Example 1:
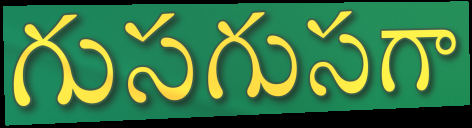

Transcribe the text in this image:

గుసగుసగా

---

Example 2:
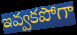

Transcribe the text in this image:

ఇవ్వకపోగా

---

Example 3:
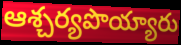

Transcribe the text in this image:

ఆశ్చర్యపొయ్యారు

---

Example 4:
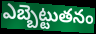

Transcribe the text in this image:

ఎబ్బెట్టుతనం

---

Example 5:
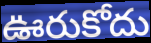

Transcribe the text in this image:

ఊరుకోదు